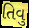
તિવુ